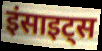
इंसाइट्स